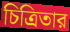
চিত্রিতার